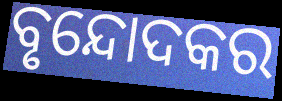
ବୃନ୍ଦୋଦକର